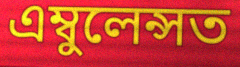
এম্বুলেন্সত